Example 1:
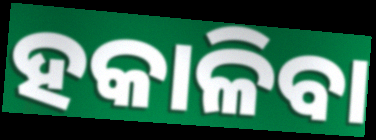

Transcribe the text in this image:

ହକାଳିବା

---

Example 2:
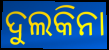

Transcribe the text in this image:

ଦୁଲକିନା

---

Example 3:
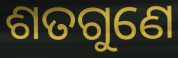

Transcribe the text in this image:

ଶତଗୁଣେ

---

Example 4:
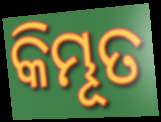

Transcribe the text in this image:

କିମ୍ଭୂତ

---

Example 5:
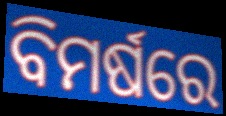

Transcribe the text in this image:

ବିମର୍ଷରେ